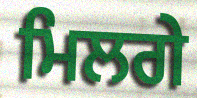
ਮਿਲਗੇ